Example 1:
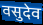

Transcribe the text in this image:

वसुदेव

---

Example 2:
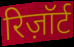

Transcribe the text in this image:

रिज़ॉर्ट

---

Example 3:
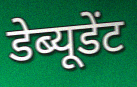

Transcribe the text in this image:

डेब्यूडेंट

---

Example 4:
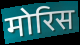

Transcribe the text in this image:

मोरिस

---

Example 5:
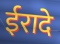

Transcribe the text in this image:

ईरादे